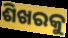
ଶିଖରକୁ